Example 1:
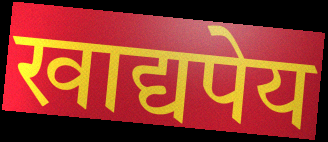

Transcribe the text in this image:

खाद्यपेय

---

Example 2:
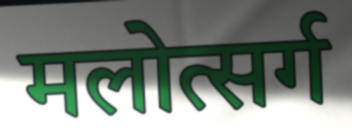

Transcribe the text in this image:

मलोत्सर्ग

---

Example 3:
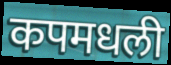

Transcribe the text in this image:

कपमधली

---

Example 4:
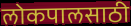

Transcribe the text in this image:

लोकपालसाठी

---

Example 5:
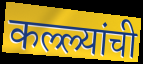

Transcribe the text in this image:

कल्ल्यांची